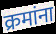
क्रमांना